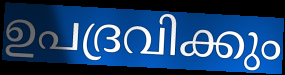
ഉപദ്രവിക്കും